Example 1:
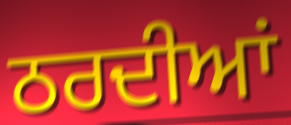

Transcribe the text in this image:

ਠਰਦੀਆਂ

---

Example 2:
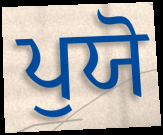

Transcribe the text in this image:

ਪੁਯੋ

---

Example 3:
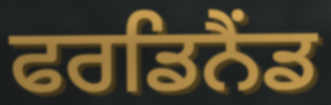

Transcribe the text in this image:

ਫਰਡਿਨੈਂਡ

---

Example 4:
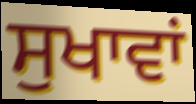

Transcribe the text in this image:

ਸੁਖਾਵਾਂ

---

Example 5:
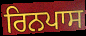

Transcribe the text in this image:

ਰਿਨਪਾਸ